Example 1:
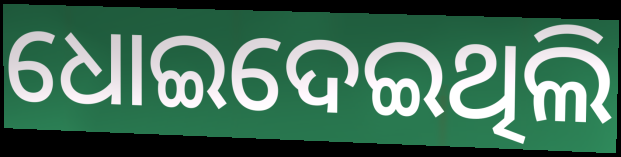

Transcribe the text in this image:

ଧୋଇଦେଇଥିଲି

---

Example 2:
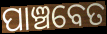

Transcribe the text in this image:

ପାଞ୍ଚବେତ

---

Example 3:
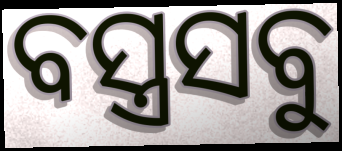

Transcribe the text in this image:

ବସ୍ତ୍ରସବୁ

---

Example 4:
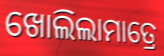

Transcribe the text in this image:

ଖୋଲିଲାମାତ୍ରେ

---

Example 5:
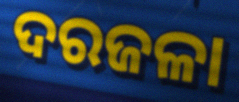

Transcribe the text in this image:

ଦରଜଳା